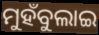
ମୁହଁବୁଲାଇ